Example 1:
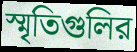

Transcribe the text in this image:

স্মৃতিগুলির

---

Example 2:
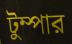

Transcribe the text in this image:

টুম্পার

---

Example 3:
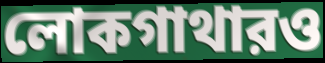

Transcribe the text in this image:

লোকগাথারও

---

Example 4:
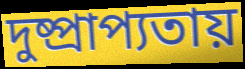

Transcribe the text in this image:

দুষ্প্রাপ্যতায়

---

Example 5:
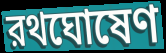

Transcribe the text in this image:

রথঘোষেণ